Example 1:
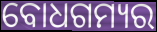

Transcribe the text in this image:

ବୋଧଗମ୍ୟର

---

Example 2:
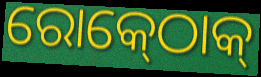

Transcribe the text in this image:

ରୋକ୍‍ଠୋକ୍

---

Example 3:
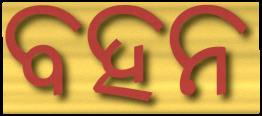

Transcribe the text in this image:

ବହନ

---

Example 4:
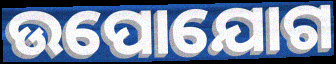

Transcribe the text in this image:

ଉପୋଯୋଗ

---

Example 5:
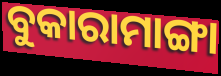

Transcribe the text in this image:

ବୁକାରାମାଙ୍ଗା